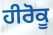
ਹੀਰੋਕੂ